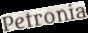
Petronia